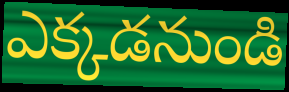
ఎక్కడనుండి